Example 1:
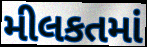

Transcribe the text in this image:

મીલકતમાં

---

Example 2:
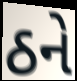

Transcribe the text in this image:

ઠને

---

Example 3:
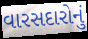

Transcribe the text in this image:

વારસદારોનું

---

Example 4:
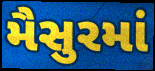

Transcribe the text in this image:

મૈસુરમાં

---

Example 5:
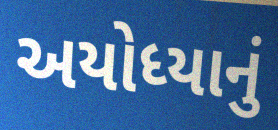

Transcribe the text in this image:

અયોધ્યાનું